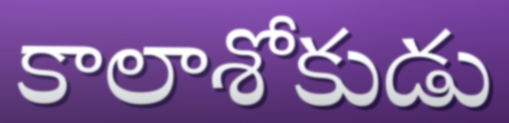
కాలాశోకుడు